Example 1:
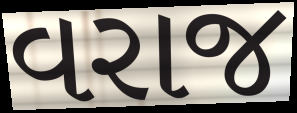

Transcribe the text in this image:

વરાજ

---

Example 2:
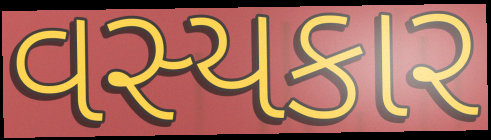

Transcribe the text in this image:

વસ્યકાર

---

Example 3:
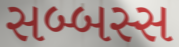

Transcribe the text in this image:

સબ્બસ્સ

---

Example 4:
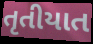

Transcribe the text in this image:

તૃતીયાત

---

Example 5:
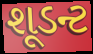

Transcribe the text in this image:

શૂડન્ટ